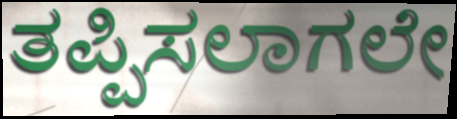
ತಪ್ಪಿಸಲಾಗಲೇ